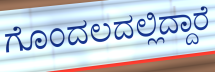
ಗೊಂದಲದಲ್ಲಿದ್ದಾರೆ